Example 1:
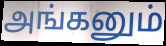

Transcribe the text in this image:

அங்கனும்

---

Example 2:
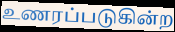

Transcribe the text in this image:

உணரப்படுகின்ற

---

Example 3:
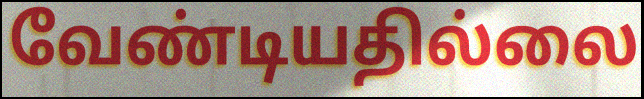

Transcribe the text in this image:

வேண்டியதில்லை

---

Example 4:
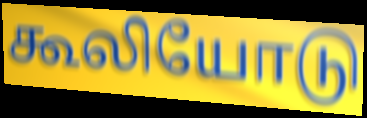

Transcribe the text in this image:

கூலியோடு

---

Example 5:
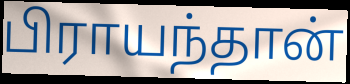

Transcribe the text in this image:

பிராயந்தான்